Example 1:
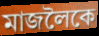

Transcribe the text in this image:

মাজলৈকে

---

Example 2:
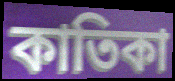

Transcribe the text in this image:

কাতিকা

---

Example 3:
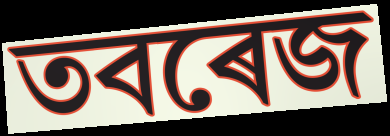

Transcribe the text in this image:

তবৰেজ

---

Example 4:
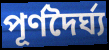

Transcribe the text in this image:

পূৰ্ণদৈৰ্ঘ্য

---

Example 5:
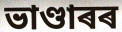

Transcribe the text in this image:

ভাণ্ডাৰৰ